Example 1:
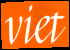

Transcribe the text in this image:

viet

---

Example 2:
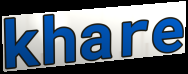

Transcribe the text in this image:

khare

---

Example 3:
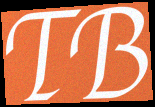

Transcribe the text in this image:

TB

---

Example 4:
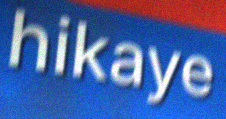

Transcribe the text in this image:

hikaye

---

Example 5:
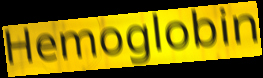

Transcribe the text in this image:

Hemoglobin